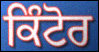
ਕਿੰਟੋਰ